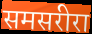
समसरीरा